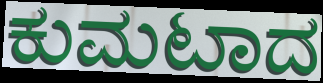
ಕುಮಟಾದ